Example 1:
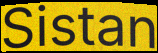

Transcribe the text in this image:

Sistan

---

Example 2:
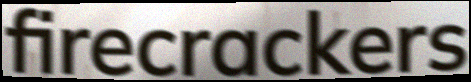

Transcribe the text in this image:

firecrackers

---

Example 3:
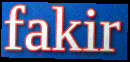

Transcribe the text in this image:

fakir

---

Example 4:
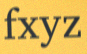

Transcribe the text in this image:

fxyz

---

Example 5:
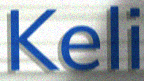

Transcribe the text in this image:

Keli